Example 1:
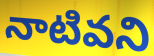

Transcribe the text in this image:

నాటివని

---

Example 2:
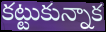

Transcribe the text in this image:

కట్టుకున్నాక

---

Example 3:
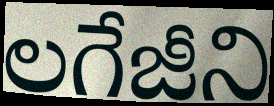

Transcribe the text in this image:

లగేజీని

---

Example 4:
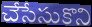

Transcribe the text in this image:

చేసేసుకొని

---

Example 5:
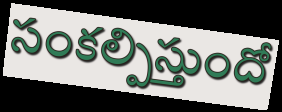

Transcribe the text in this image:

సంకల్పిస్తుందో